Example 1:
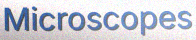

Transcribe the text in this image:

Microscopes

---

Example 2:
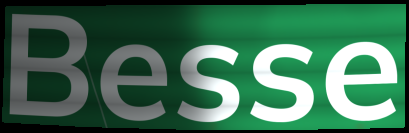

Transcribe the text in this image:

Besse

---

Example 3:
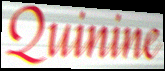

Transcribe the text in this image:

Quinine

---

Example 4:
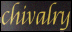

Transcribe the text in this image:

chivalry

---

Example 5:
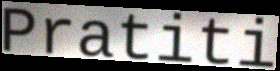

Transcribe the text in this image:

Pratiti